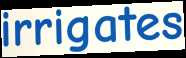
irrigates